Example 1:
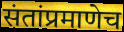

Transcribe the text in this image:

संतांप्रमाणेच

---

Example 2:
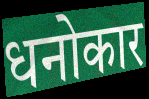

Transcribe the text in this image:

धनोकार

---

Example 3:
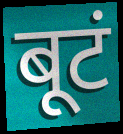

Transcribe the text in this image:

बूटं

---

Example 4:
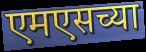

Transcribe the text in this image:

एमएसच्या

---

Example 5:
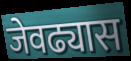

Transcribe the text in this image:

जेवढ्यास